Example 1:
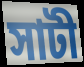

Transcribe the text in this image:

সাটী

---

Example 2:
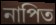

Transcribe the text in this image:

নাপিত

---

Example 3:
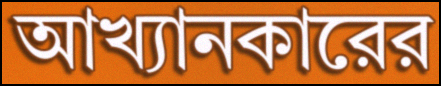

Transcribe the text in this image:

আখ্যানকারের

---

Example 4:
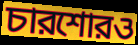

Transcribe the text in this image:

চারশোরও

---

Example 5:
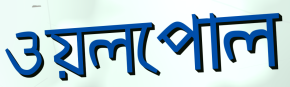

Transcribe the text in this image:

ওয়লপোল